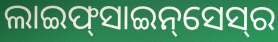
ଲାଇଫ୍‌ସାଇନ୍‌ସେସ୍‌ର